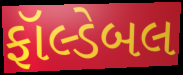
ફૉલ્ડેબલ